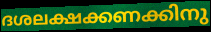
ദശലക്ഷക്കണക്കിനു